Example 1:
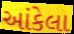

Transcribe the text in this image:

આંકેલા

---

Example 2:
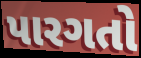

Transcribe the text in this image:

પારગતો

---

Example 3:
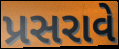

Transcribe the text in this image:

પ્રસરાવે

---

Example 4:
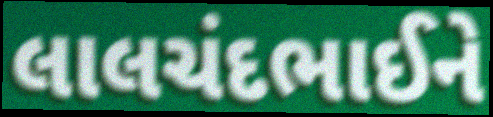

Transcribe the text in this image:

લાલચંદભાઈને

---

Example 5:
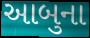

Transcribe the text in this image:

આબુના